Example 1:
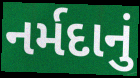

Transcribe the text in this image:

નર્મદાનું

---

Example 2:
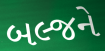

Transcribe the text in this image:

બલ્જને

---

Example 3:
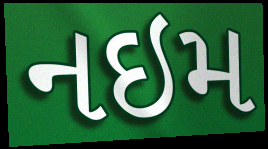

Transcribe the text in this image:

નઇમ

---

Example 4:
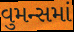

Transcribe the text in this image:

વુમન્સમાં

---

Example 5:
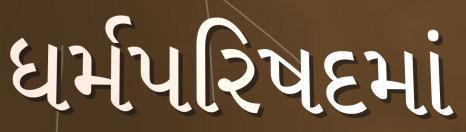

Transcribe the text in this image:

ધર્મપરિષદમાં